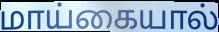
மாய்கையால்